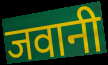
जवानी